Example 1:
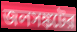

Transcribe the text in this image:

জলসঙ্কটের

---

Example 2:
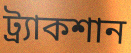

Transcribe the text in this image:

ট্র্যাকশান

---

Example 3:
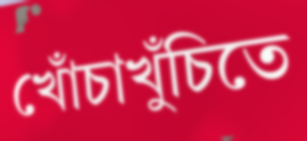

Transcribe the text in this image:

খোঁচাখুঁচিতে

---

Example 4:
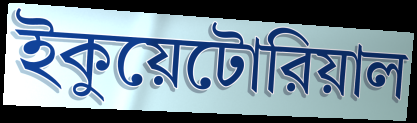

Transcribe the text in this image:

ইকুয়েটোরিয়াল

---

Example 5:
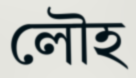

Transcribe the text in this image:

লৌহ